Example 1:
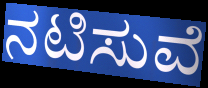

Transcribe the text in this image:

ನಟಿಸುವೆ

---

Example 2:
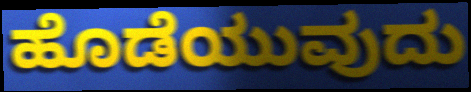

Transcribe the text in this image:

ಹೊಡೆಯುವುದು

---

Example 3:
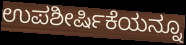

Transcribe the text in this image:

ಉಪಶೀರ್ಷಿಕೆಯನ್ನೂ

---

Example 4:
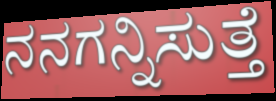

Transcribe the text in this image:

ನನಗನ್ನಿಸುತ್ತೆ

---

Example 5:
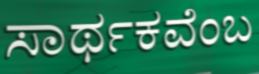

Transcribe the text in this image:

ಸಾರ್ಥಕವೆಂಬ